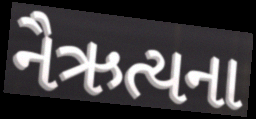
નૈઋત્યના